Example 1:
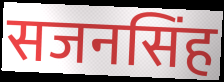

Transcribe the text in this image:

सजनसिंह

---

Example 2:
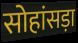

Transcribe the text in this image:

सोहांसड़ा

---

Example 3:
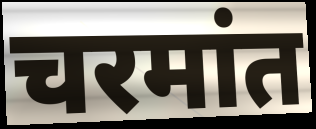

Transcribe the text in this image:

चरमांत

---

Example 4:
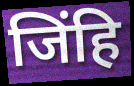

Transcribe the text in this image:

जिंहि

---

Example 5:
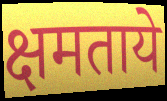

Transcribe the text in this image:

क्षमताये